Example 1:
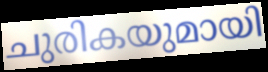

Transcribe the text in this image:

ചുരികയുമായി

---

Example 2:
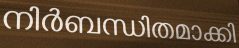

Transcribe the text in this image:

നിർബന്ധിതമാക്കി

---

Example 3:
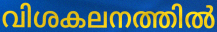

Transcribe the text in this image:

വിശകലനത്തിൽ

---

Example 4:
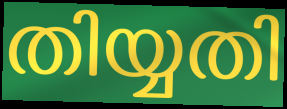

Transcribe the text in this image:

തിയ്യതി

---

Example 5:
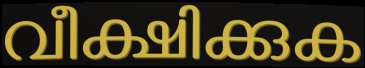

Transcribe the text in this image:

വീക്ഷിക്കുക